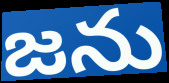
జను